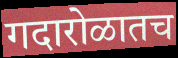
गदारोळातच